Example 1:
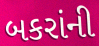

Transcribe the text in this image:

બકરાંની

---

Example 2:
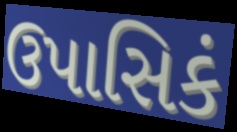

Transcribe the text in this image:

ઉપાસિકં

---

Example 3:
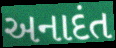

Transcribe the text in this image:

અનાદંત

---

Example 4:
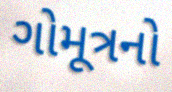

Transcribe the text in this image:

ગોમૂત્રનો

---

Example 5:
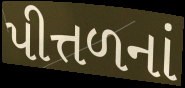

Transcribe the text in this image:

પીત્તળનાં